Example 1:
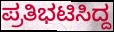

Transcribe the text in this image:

ಪ್ರತಿಭಟಿಸಿದ್ದ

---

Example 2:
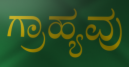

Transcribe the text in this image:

ಗ್ರಾಹ್ಯವು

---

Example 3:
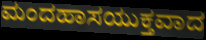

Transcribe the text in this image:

ಮಂದಹಾಸಯುಕ್ತವಾದ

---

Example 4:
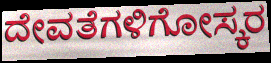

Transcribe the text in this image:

ದೇವತೆಗಳಿಗೋಸ್ಕರ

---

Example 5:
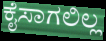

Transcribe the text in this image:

ಕೈಸಾಗಲಿಲ್ಲ